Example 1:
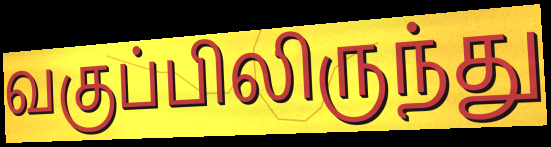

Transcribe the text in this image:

வகுப்பிலிருந்து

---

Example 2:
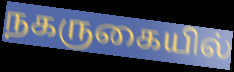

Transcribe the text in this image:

நகருகையில்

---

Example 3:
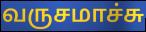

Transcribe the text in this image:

வருசமாச்சு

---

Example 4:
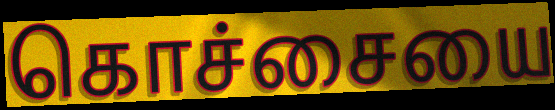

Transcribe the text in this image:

கொச்சையை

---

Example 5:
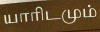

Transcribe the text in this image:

யாரிடமும்